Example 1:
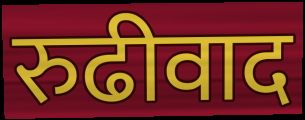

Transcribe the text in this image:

रुढीवाद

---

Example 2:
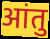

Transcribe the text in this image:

आंतु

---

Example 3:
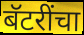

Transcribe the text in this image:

बॅटरींचा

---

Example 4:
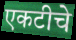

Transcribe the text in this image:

एकटीचे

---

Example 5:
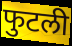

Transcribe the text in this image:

फुटली